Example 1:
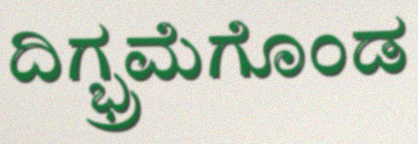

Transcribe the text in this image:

ದಿಗ್ಭ್ರಮೆಗೊಂಡ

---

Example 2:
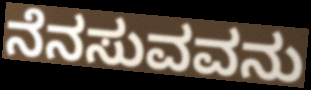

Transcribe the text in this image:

ನೆನಸುವವನು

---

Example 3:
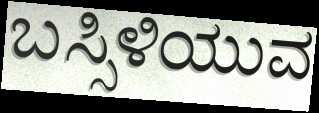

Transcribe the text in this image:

ಬಸ್ಸಿಳಿಯುವ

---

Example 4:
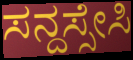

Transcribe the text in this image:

ಸನ್ದಸ್ಸೇಸಿ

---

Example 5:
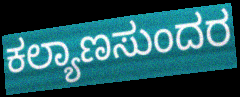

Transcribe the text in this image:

ಕಲ್ಯಾಣಸುಂದರ